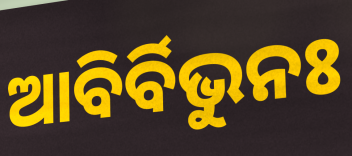
ଆବିର୍ବିଭୁନଃ